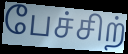
பேச்சிற்